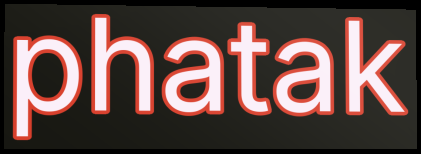
phatak